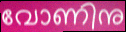
വോണിനു